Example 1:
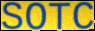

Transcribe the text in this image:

SOTC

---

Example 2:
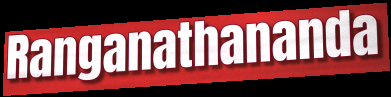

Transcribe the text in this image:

Ranganathananda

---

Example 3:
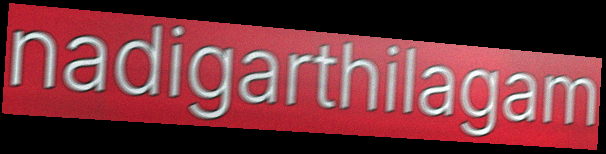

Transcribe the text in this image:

nadigarthilagam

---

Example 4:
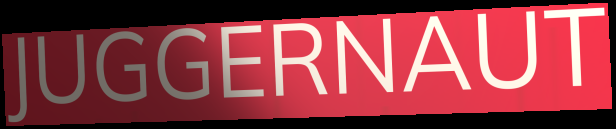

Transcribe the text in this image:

JUGGERNAUT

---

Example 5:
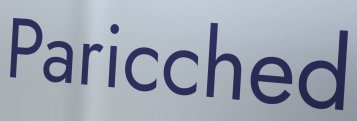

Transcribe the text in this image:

Paricched